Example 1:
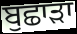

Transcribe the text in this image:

ਬੁਛਾੜਾ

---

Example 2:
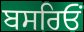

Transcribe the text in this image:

ਬਸਰਿਓਂ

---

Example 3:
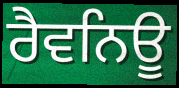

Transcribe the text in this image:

ਰੈਵਨਿਊ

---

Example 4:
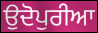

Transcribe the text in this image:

ਉਦੋਪੁਰੀਆ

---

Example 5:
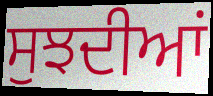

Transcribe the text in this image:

ਸੁਝਦੀਆਂ